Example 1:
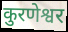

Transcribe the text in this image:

कुरणेश्वर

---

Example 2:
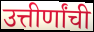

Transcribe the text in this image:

उत्तीर्णांची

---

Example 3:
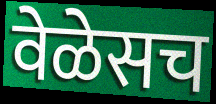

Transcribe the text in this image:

वेळेसच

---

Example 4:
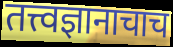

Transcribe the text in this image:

तत्त्वज्ञानाचाच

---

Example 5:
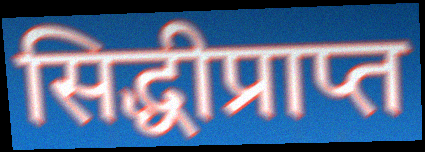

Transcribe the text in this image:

सिद्धीप्राप्त